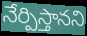
నేర్పిస్తానని